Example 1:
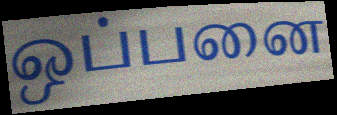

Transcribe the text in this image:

ஒப்பனை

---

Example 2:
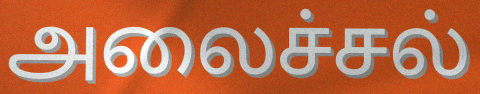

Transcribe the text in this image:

அலைச்சல்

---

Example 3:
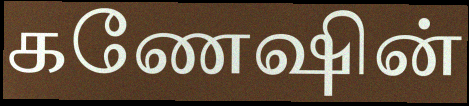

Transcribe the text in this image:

கணேஷின்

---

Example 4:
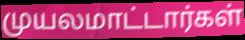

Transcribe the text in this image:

முயலமாட்டார்கள்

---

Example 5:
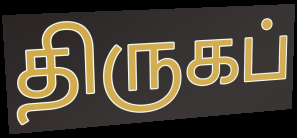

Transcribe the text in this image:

திருகப்